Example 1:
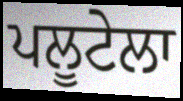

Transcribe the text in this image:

ਪਲੂਟੇਲਾ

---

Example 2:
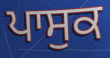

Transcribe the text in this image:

ਪਾਸੁਕ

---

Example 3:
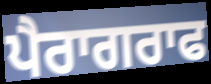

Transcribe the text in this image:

ਪੈਰਾਗਰਾਫ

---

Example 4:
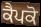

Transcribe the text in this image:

ਕੈਪਕੋ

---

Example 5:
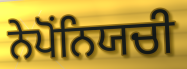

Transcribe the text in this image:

ਨੇਪੋਂਨਿਯਚੀ